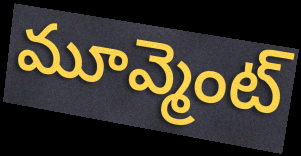
మూవ్మెంట్